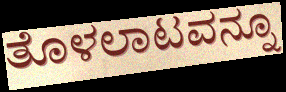
ತೊಳಲಾಟವನ್ನೂ